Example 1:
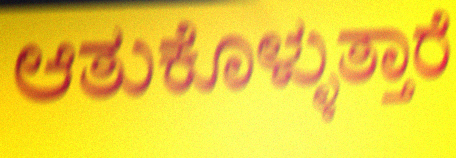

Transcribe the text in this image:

ಆತುಕೊಳ್ಳುತ್ತಾರೆ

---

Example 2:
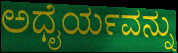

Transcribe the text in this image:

ಅಧೈರ್ಯವನ್ನು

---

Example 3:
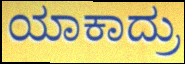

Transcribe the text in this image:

ಯಾಕಾದ್ರು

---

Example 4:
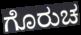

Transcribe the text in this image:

ಗೊರುಚ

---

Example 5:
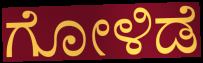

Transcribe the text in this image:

ಗೋಳಿಡೆ